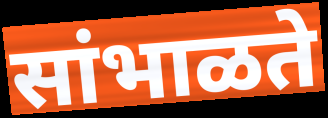
सांभाळते